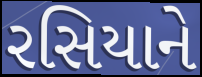
રસિયાને